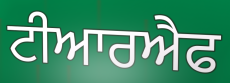
ਟੀਆਰਐਫ